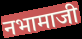
नभामाजी